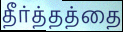
தீர்த்தத்தை